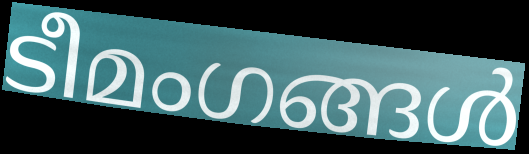
ടീമംഗങ്ങൾ